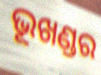
ଭୂଖଣ୍ଡର